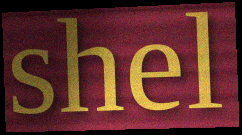
shel